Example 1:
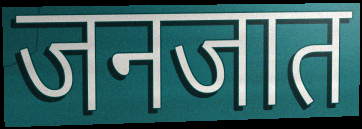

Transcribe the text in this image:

जनजात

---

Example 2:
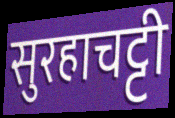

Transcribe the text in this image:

सुरहाचट्टी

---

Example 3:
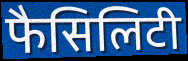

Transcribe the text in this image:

फैसिलिटी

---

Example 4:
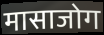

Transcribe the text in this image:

मासाजोग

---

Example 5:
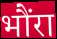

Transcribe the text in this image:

भौंरा